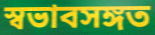
স্বভাবসঙ্গত